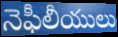
నెఫీలీయులు